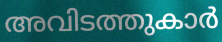
അവിടത്തുകാർ